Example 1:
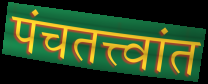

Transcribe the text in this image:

पंचतत्त्वांत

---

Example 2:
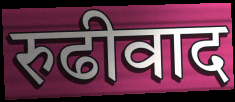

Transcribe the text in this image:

रुढीवाद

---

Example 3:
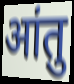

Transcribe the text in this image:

आंतु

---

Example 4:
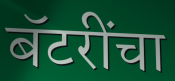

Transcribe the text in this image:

बॅटरींचा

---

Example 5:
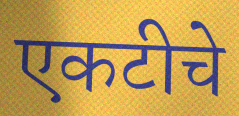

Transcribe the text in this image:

एकटीचे